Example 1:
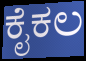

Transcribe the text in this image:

ಕೈಕಲ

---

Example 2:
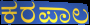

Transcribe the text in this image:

ಕರಪಾಲ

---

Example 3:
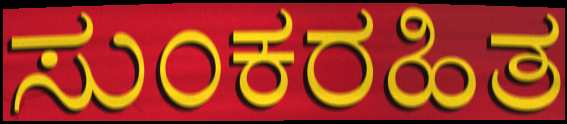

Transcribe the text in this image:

ಸುಂಕರಹಿತ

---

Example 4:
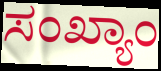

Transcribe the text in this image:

ಸಂಖ್ಯಾಂ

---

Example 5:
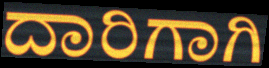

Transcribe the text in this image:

ದಾರಿಗಾಗಿ